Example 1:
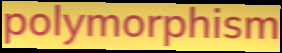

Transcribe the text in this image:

polymorphism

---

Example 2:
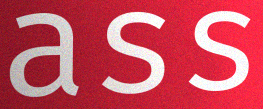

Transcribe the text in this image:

ass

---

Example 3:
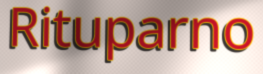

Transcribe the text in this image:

Rituparno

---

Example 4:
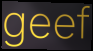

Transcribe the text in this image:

geef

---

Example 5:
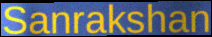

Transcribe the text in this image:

Sanrakshan